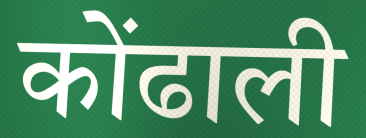
कोंढाली